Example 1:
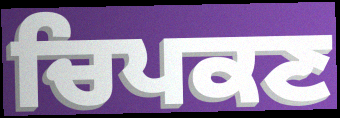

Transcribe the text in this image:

ਚਿਪਕਣ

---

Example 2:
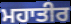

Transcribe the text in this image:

ਮਹਾਤੀਰ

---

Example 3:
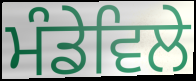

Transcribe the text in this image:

ਮੰਡੇਵਿਲੇ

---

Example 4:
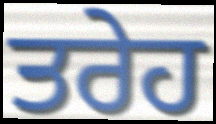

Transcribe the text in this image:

ਤਰੇਹ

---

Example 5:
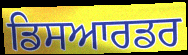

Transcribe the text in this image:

ਡਿਸਆਰਡਰ